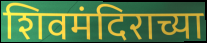
शिवमंदिराच्या